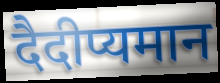
दैदीप्यमान